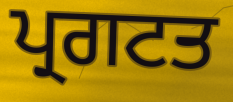
ਪ੍ਰਗਟਤ